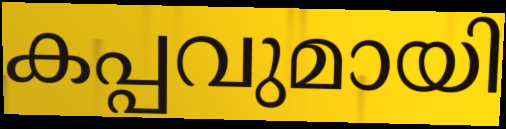
കപ്പവുമായി